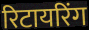
रिटायरिंग